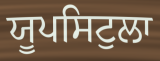
ਯੂਪਸਿਟੁਲਾ